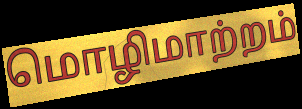
மொழிமாற்றம்